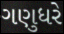
ગણુધરે